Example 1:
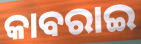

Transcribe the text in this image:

କାବରାଇ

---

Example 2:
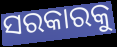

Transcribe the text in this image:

ସରକାରକୁ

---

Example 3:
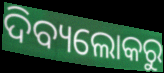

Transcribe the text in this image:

ଦିବ୍ୟଲୋକରୁ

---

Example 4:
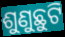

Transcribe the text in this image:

ଶୁଣୁଛୁଟି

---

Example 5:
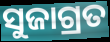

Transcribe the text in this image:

ସୁଜାଗ୍ରତ